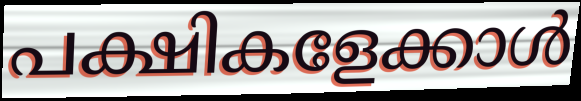
പക്ഷികളേക്കാൾ